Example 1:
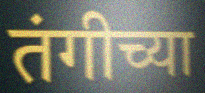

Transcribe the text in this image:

तंगीच्या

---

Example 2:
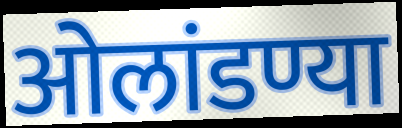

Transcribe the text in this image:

ओलांडण्या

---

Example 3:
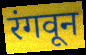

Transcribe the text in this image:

रंगवून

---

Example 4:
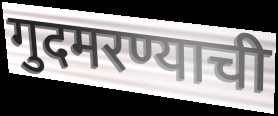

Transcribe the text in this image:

गुदमरण्याची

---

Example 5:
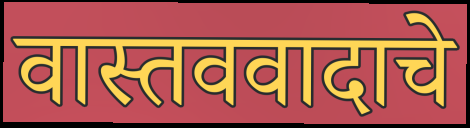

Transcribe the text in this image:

वास्तववादाचे